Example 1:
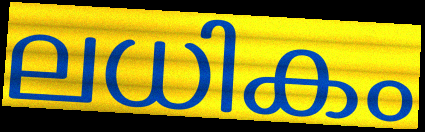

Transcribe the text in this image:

ലധികം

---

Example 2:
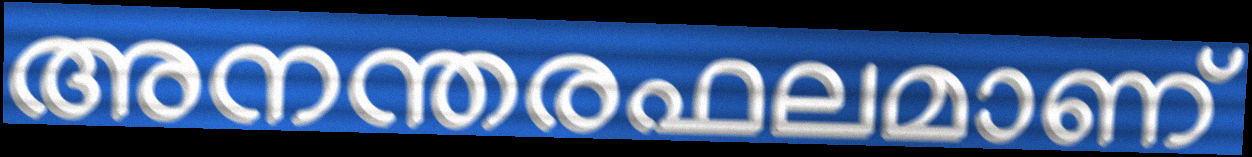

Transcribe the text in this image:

അനന്തരഫലമാണ്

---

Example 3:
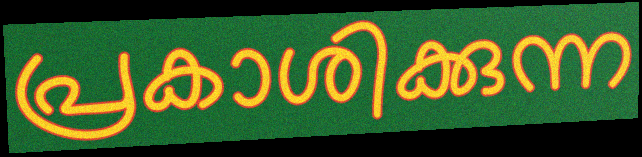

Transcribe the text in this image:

പ്രകാശിക്കുന്ന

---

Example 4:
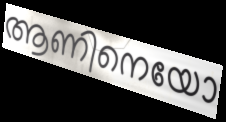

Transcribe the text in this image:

ആണിനെയോ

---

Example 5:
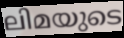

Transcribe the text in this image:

ലിമയുടെ